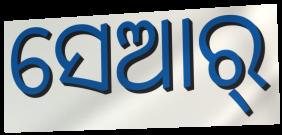
ସେଆର୍